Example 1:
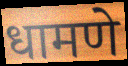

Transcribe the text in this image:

धामणे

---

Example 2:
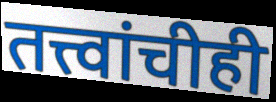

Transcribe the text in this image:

तत्त्वांचीही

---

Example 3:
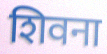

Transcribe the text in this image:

शिवना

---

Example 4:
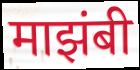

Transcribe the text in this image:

माझंबी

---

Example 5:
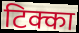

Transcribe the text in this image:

टिक्का